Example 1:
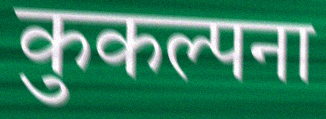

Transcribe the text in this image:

कुकल्पना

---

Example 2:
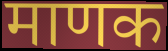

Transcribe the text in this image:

माणक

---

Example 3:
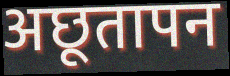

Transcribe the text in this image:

अछूतापन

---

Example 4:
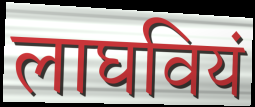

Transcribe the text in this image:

लाघवियं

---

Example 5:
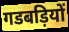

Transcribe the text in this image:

गडबड़ियों